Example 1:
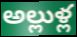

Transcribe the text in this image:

అల్లుళ్ల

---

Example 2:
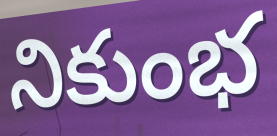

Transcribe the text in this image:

నికుంభ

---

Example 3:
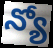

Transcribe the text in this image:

న్యో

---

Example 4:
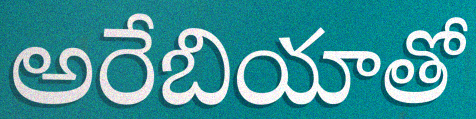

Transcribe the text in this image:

అరేబియాతో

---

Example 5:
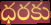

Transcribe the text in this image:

ధరకు